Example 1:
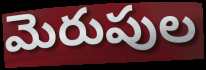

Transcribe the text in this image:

మెరుపుల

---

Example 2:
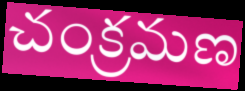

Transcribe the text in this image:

చంక్రమణ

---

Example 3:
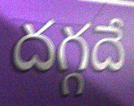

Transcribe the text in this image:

దగ్గదే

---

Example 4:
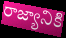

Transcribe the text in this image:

రాజ్యానికి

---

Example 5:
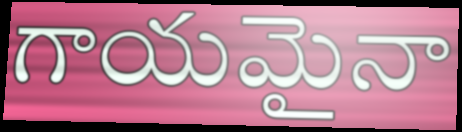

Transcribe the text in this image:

గాయమైనా